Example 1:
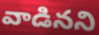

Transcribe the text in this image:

వాడినని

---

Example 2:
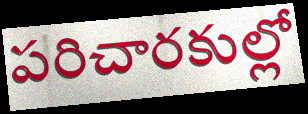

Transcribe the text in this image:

పరిచారకుల్లో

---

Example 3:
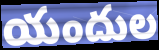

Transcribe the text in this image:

యందుల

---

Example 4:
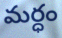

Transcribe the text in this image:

మర్ధం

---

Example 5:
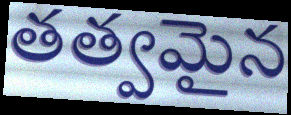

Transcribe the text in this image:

తత్వమైన